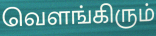
வெளங்கிரும்